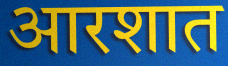
आरशात